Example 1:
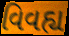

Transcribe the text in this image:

વિવહ્ય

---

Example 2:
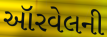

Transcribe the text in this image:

ઑરવેલની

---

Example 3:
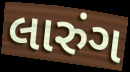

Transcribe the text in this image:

લારુંગ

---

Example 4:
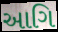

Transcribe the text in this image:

આગિ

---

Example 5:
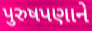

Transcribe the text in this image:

પુરુષપણાને